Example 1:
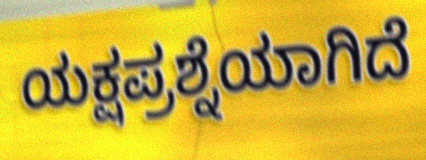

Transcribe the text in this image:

ಯಕ್ಷಪ್ರಶ್ನೆಯಾಗಿದೆ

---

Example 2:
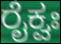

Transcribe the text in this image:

ರೈಕ್ವಃ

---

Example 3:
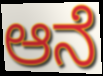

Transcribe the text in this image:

ಆನೆ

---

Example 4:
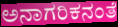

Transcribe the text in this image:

ಅನಾಗರಿಕನಂತೆ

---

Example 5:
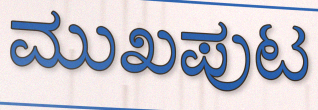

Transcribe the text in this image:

ಮುಖಪುಟ